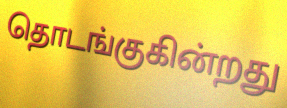
தொடங்குகின்றது